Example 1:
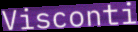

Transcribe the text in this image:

Visconti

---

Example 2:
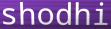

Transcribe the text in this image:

shodhi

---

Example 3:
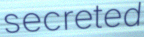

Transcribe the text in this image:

secreted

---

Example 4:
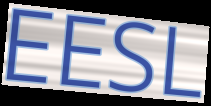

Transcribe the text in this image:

EESL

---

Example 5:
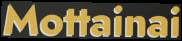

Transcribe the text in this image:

Mottainai